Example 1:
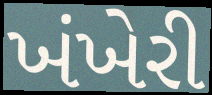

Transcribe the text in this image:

ખંખેરી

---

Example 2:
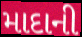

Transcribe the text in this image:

માદાની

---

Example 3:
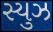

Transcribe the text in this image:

સ્યુઝ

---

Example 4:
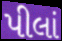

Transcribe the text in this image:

પીલાં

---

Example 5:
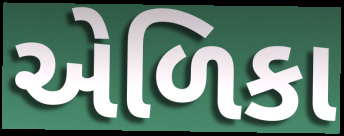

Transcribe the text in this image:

એળિકા